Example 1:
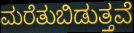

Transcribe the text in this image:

ಮರೆತುಬಿಡುತ್ತವೆ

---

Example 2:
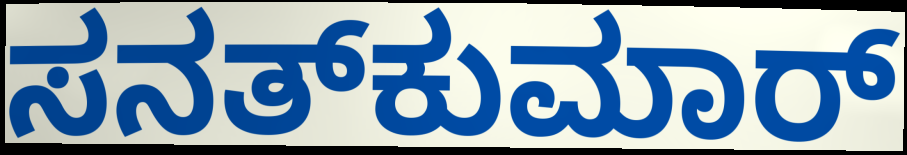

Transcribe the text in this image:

ಸನತ್‌ಕುಮಾರ್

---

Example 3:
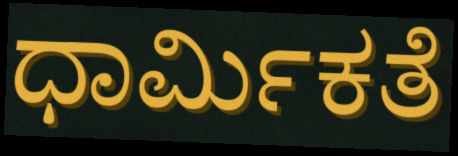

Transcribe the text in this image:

ಧಾರ್ಮಿಕತೆ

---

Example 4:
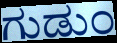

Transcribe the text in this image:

ಗುಡುಂ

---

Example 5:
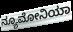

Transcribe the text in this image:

ನ್ಯೂಮೋನಿಯಾ